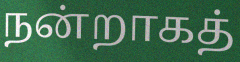
நன்றாகத்